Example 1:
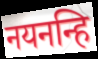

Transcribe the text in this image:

नयनन्हि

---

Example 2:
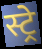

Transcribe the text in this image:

स्ट्रे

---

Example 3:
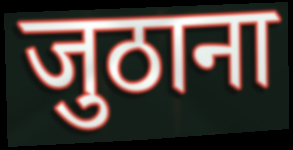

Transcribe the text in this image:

जुठाना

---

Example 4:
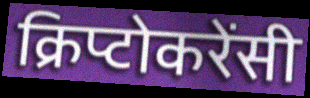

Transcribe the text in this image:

क्रिप्टोकरेंसी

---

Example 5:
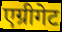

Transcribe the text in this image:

एग्रीगेट